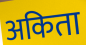
अकिता